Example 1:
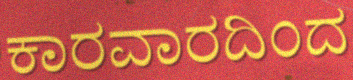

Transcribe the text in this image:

ಕಾರವಾರದಿಂದ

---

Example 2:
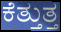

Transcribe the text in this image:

ಕೆತ್ತುತ್ತ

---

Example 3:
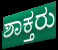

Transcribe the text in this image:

ಶಾಕ್ತರು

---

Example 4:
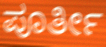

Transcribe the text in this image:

ಪೂರ್ತೀ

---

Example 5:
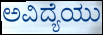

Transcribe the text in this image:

ಅವಿದ್ಯೆಯು